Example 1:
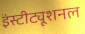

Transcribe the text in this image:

इंस्टीट्यूशनल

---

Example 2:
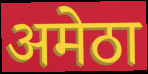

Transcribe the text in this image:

अमेठा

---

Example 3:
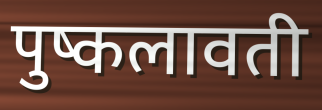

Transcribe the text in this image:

पुष्कलावती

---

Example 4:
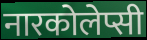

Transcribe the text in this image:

नारकोलेप्सी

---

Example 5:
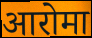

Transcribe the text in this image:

आरोमा